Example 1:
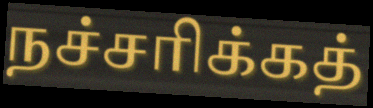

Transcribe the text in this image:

நச்சரிக்கத்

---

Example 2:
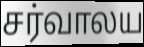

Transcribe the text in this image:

சர்வாலய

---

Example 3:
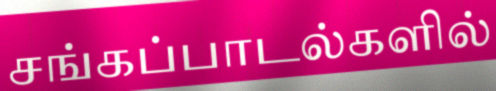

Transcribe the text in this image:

சங்கப்பாடல்களில்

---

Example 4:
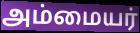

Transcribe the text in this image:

அம்மையர்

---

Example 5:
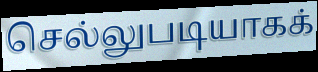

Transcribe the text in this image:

செல்லுபடியாகக்